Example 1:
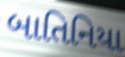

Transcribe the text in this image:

બાતિનિયા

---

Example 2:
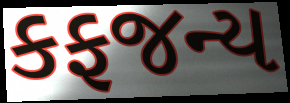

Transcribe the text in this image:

કફજન્ય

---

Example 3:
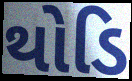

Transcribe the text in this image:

થોડિ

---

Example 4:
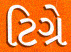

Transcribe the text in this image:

ટિગ્રે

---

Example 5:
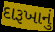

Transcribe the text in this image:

દારૂખાનું